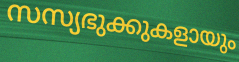
സസ്യഭുക്കുകളായും